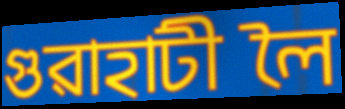
গুৱাহাটীলৈ